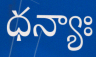
ధన్యాః